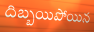
దిబ్బయిపోయిన